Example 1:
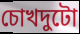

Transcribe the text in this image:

চোখদুটো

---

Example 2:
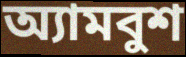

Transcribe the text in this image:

অ্যামবুশ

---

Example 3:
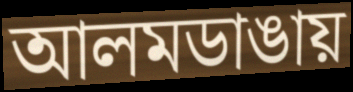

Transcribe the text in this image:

আলমডাঙায়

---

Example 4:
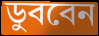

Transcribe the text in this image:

ডুববেন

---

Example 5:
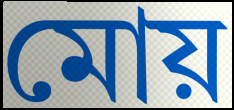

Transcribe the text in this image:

মোয়